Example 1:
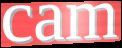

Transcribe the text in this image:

cam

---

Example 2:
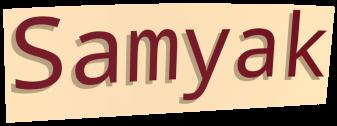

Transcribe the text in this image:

Samyak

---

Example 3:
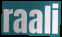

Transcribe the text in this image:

raali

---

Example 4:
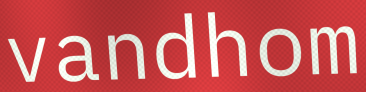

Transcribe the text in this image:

vandhom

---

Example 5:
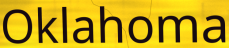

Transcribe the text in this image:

Oklahoma